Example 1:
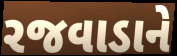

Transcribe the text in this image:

રજવાડાને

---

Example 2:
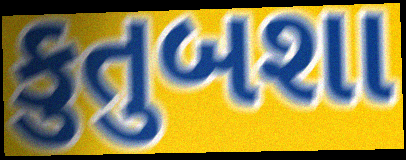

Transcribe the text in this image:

કુતુબશા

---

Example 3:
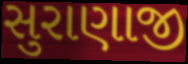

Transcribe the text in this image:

સુરાણાજી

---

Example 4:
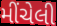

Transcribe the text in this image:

મીંચેલી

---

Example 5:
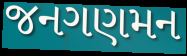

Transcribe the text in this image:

જનગણમન